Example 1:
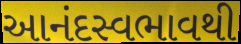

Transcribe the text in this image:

આનંદસ્વભાવથી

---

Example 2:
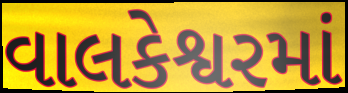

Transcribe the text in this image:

વાલકેશ્વરમાં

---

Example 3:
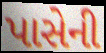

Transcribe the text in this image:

પાસેની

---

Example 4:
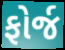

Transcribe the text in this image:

ફોર્જ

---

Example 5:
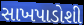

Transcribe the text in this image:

સાખપાડોશી